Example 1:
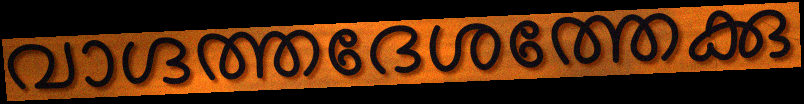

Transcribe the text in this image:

വാഗ്ദത്തദേശത്തേക്കു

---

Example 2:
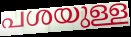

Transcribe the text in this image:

പശയുള്ള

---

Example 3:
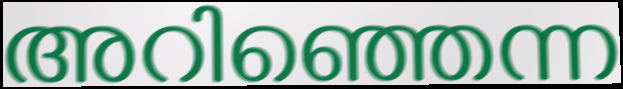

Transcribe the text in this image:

അറിഞ്ഞെന്ന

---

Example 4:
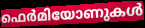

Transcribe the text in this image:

ഫെർമിയോണുകൾ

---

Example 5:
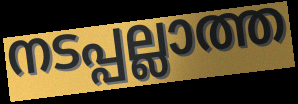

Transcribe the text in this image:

നടപ്പല്ലാത്ത